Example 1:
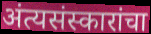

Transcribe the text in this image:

अंत्यसंस्कारांचा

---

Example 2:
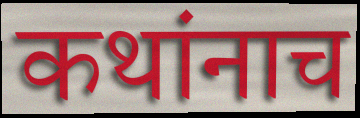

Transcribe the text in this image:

कथांनाच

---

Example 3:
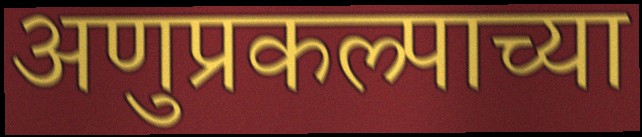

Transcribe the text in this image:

अणुप्रकल्पाच्या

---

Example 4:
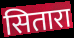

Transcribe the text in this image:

सितारा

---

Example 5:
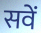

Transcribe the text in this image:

सवें